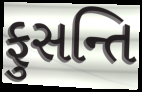
ફુસન્તિ